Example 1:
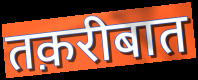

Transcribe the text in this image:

तक़रीबात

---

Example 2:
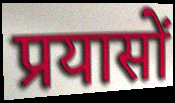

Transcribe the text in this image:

प्रयासों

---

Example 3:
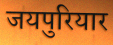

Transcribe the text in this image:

जयपुरियार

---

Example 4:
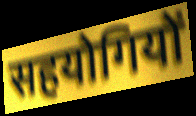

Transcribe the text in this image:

सहयोगियों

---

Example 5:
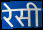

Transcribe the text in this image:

रेसी